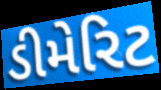
ડીમેરિટ